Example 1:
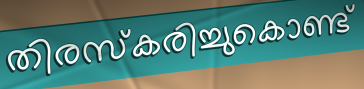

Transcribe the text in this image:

തിരസ്കരിച്ചുകൊണ്ട്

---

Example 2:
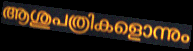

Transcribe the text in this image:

ആശുപത്രികളൊന്നും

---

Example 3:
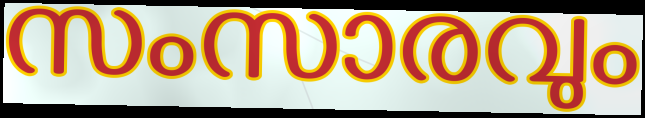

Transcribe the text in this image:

സംസാരവും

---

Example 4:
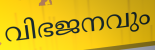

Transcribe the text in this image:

വിഭജനവും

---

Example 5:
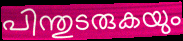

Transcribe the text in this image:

പിന്തുടരുകയും